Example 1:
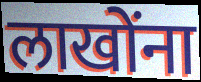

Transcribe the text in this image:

लाखोंना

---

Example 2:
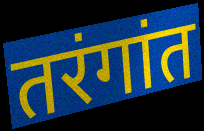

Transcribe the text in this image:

तरंगांत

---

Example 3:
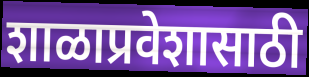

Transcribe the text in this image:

शाळाप्रवेशासाठी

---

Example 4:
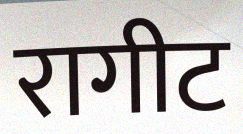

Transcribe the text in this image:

रागीट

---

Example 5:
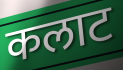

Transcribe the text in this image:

कलाट